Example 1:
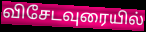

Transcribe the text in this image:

விசேடவுரையில்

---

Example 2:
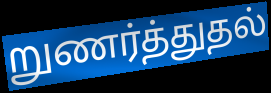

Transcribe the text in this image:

றுணர்த்துதல்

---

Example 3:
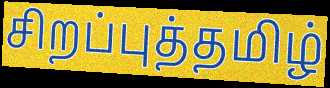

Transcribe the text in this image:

சிறப்புத்தமிழ்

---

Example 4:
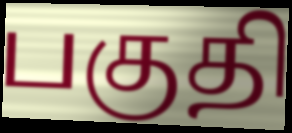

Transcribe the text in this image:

பகுதி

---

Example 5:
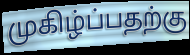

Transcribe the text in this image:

முகிழ்ப்பதற்கு